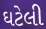
ઘટેલી